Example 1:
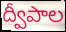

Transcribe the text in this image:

ద్వీపాల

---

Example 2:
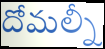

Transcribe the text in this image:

దోమల్నీ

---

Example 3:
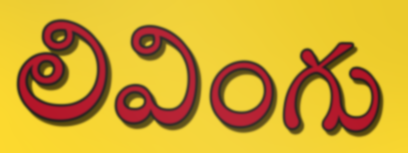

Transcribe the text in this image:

లివింగు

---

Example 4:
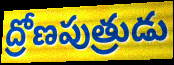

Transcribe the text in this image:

ద్రోణపుత్రుడు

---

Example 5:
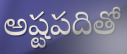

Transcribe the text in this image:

అష్టపదితో